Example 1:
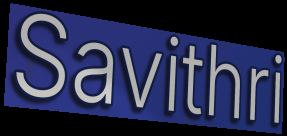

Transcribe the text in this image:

Savithri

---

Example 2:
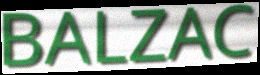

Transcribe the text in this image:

BALZAC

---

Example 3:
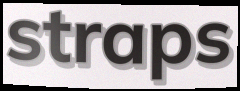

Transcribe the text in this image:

straps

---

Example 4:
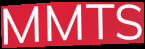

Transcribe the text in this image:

MMTS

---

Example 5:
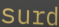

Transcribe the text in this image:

surd